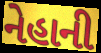
નેહાની